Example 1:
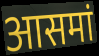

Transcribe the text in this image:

आसमां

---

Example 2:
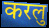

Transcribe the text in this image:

करलु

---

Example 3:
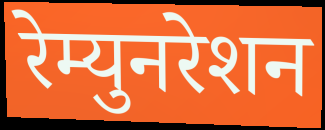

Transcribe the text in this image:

रेम्युनरेशन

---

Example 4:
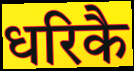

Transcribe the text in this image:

धरिकै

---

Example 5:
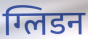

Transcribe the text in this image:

ग्लिडन